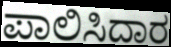
ಪಾಲಿಸಿದಾರ